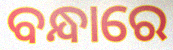
ବନ୍ଧାରେ